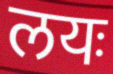
लयः